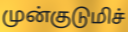
முன்குடுமிச்